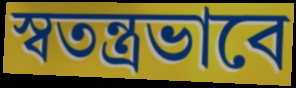
স্বতন্ত্রভাবে